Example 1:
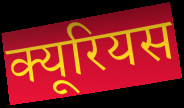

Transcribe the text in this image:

क्यूरियस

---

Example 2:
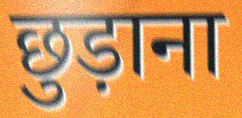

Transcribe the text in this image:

छुड़ाना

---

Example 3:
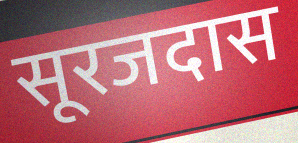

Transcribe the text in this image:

सूरजदास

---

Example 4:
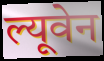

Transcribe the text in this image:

ल्यूवेन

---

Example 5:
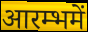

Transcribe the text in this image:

आरम्भमें